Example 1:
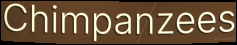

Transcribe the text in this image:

Chimpanzees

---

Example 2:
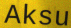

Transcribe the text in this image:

Aksu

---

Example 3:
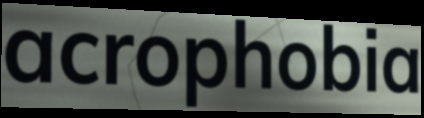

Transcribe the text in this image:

acrophobia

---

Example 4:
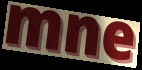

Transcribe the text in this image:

mne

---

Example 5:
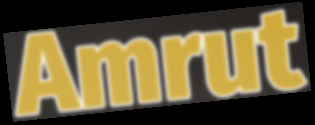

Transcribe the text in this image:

Amrut